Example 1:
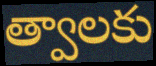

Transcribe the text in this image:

త్వాలకు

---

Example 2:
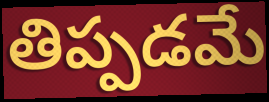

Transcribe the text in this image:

తిప్పడమే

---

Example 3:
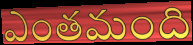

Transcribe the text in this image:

ఎంతమంది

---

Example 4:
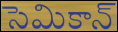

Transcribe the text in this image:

సెమికాన్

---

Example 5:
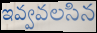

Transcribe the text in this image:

ఇవ్వవలసిన